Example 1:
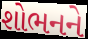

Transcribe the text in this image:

શોભનને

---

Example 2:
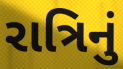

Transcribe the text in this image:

રાત્રિનું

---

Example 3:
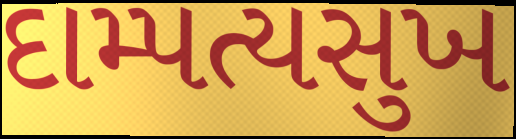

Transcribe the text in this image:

દામ્પત્યસુખ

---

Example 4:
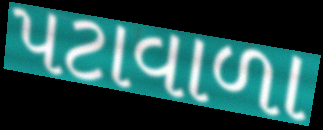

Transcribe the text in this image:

પટાવાળા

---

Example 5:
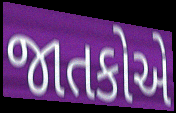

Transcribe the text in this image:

જાતકોએ